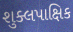
શુક્લપાક્ષિક